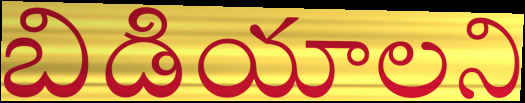
బిడియాలని